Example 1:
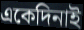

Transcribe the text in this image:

একেদিনাই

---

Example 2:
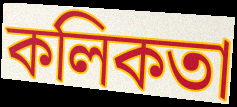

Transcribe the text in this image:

কলিকতা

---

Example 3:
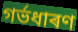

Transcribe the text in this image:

গৰ্ভধাৰণ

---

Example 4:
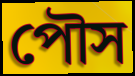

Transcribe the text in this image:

পৌস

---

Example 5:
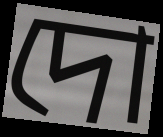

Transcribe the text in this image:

দো